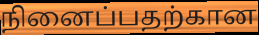
நினைப்பதற்கான